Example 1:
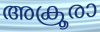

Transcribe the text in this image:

അക്രൂരാ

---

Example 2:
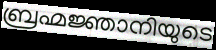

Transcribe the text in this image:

ബ്രഹ്മജ്ഞാനിയുടെ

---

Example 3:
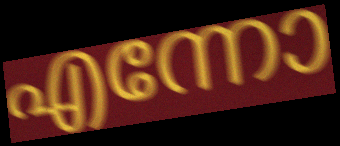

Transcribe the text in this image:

എന്നോ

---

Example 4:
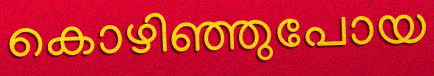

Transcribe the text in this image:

കൊഴിഞ്ഞുപോയ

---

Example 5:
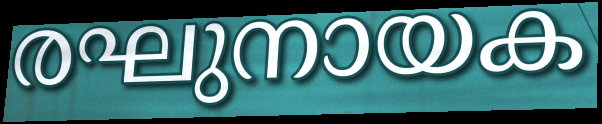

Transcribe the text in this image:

രഘുനായക